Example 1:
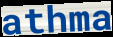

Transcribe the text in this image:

athma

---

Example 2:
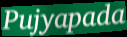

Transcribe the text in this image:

Pujyapada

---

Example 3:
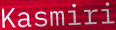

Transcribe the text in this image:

Kasmiri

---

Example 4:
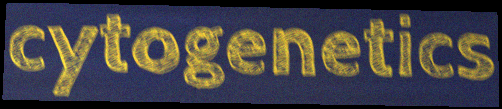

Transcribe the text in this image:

cytogenetics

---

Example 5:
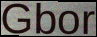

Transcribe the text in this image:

Gbor